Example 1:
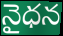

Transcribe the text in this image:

నైధన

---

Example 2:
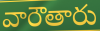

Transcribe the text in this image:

వారౌతారు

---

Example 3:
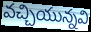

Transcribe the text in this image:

వచ్చియున్నవి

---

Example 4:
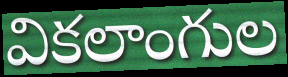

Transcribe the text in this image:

వికలాంగుల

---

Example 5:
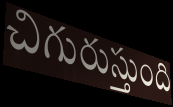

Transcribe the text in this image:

చిగురుస్తుంది